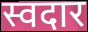
स्वदार